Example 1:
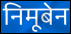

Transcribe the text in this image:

निमूबेन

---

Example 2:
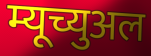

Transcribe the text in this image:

म्यूच्युअल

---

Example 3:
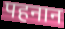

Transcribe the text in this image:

पहनान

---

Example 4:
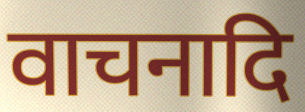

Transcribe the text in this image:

वाचनादि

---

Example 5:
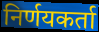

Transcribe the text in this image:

निर्णयकर्ता